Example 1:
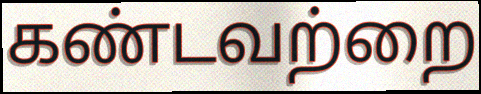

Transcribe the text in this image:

கண்டவற்றை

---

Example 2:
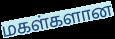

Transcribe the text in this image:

மகள்களான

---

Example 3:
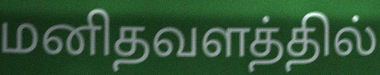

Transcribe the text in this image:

மனிதவளத்தில்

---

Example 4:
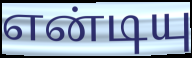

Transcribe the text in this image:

என்டியு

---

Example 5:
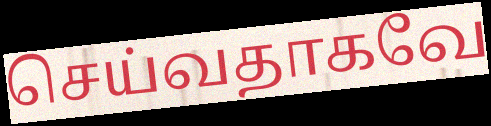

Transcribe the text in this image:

செய்வதாகவே